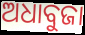
ଅଧାବୁଜା